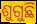
ଶୁଗୁଛି